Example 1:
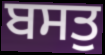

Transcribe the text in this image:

ਬਸਤੁ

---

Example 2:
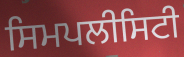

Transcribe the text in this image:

ਸਿਮਪਲੀਸਿਟੀ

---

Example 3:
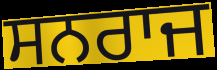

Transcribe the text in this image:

ਸਨਰਾਜ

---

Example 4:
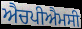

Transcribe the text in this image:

ਐਚਪੀਐਮਸੀ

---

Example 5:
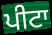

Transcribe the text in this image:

ਪੀਟਾ